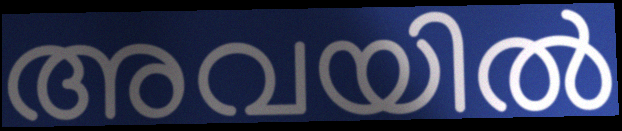
അവയിൽ